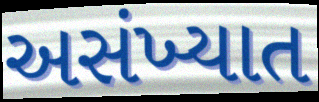
અસંખ્યાત